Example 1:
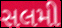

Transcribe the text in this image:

સલમી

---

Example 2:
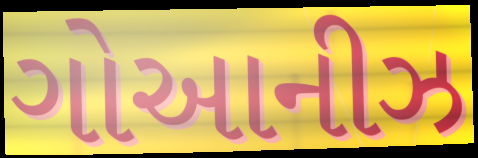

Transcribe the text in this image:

ગોઆનીઝ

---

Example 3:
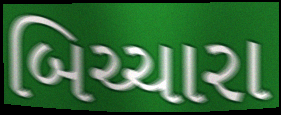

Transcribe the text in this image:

બિચ્ચારા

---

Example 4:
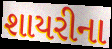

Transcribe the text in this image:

શાયરીના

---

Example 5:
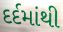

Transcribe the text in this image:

દર્દમાંથી